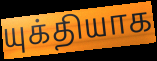
யுக்தியாக